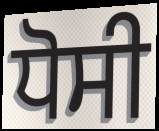
ਧੋਸੀ